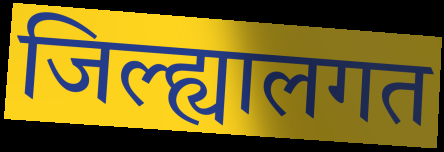
जिल्ह्यालगत